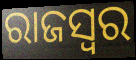
ରାଜସ୍ୱର